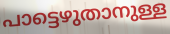
പാട്ടെഴുതാനുള്ള